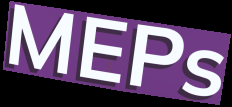
MEPs